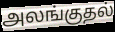
அலங்குதல்